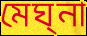
মেঘ্‌না